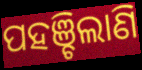
ପହଞ୍ଚିଲାଣି